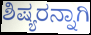
ಶಿಷ್ಯರನ್ನಾಗಿ